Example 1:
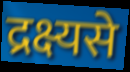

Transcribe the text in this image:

द्रक्ष्यसे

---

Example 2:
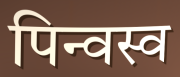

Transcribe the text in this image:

पिन्वस्व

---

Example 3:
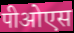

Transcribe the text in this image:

पीओएस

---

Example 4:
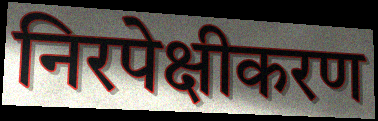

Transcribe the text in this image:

निरपेक्षीकरण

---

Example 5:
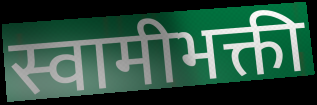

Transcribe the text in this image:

स्वामीभक्ती